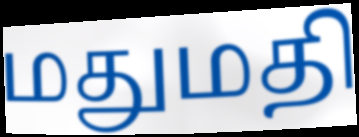
மதுமதி